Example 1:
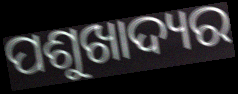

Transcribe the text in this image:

ପଶୁଖାଦ୍ୟର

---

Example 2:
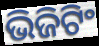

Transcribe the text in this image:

ଭିଜିଟିଂ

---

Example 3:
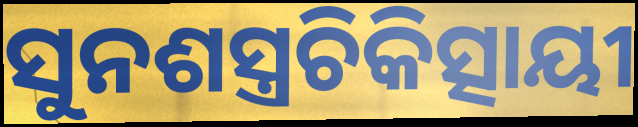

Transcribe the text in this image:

ସୁନଶସ୍ତ୍ରଚିକିତ୍ସାୟୀ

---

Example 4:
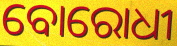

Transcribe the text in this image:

ବୋରୋଧୀ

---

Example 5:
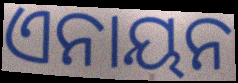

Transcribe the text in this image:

ଏନାୟନ